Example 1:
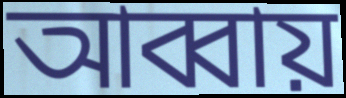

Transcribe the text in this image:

আব্বায়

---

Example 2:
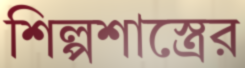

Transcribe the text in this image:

শিল্পশাস্ত্রের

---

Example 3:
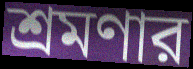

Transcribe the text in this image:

শ্রমণার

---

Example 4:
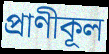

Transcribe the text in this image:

প্রাণীকূল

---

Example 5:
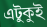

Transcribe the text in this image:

এটুকুই